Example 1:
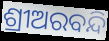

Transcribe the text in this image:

ଶ୍ରୀଅରବନ୍ଦି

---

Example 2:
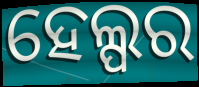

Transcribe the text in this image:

ହେଲ୍ପର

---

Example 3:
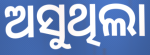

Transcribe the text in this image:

ଅସୁଥିଲା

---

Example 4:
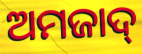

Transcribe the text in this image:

ଅମଜାଦ୍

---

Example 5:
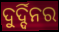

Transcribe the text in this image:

ଦୁର୍ଦ୍ଦିନର